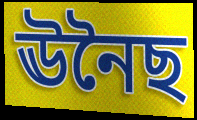
ঊনৈছ